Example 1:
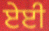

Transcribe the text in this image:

ਏਈ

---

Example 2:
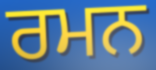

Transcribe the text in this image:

ਰਮਨ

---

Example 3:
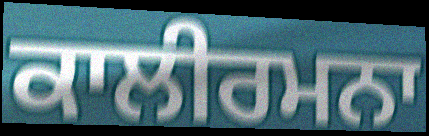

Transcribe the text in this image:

ਕਾਲੀਰਮਨਾ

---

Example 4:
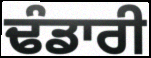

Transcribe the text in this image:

ਢੰਡਾਰੀ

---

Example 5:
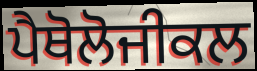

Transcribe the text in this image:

ਪੈਥੋਲੋਜੀਕਲ